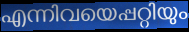
എന്നിവയെപ്പറ്റിയും